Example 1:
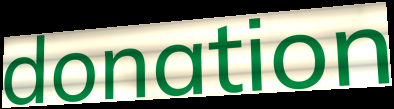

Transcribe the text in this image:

donation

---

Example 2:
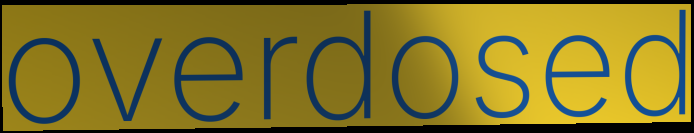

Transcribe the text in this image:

overdosed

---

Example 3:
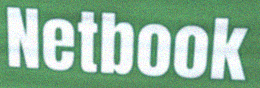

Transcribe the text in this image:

Netbook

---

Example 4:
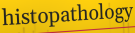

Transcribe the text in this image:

histopathology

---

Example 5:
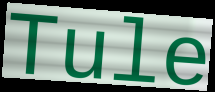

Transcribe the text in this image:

Tule